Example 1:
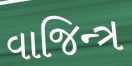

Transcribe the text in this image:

વાજિન્ત્ર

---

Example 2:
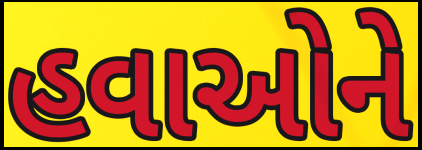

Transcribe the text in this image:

હવાઓને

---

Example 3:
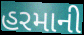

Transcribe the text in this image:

હરમાની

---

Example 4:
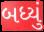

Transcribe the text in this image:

બધ્યું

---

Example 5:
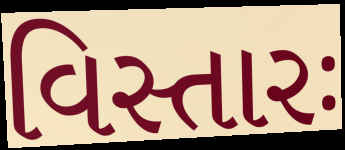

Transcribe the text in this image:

વિસ્તારઃ